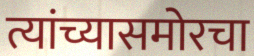
त्यांच्यासमोरचा